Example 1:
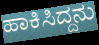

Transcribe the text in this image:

ಹಾಕಿಸಿದ್ದನು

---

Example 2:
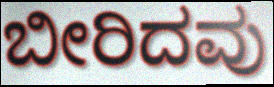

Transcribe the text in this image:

ಬೀರಿದವು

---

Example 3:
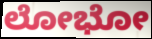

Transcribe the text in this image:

ಲೋಭೋ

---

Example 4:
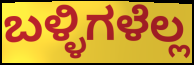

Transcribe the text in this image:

ಬಳ್ಳಿಗಳೆಲ್ಲ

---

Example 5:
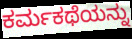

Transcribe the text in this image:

ಕರ್ಮಕಥೆಯನ್ನು